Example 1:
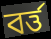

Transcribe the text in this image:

বর্ত্ত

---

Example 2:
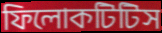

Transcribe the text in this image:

ফিলোকটিটিস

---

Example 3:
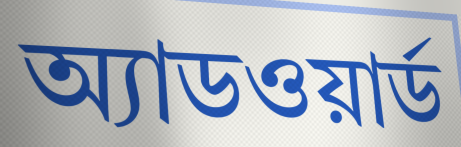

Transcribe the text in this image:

অ্যাডওয়ার্ড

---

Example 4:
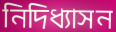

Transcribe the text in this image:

নিদিধ্যাসন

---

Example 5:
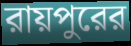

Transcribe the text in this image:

রায়পুরের